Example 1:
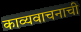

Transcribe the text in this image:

काव्यवाचनाची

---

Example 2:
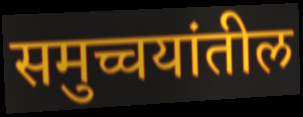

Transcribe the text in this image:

समुच्चयांतील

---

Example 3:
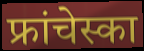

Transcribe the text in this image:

फ्रांचेस्का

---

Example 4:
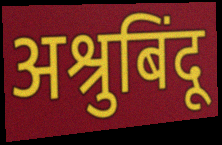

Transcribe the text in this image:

अश्रुबिंदू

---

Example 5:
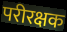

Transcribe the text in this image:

परीरक्षक